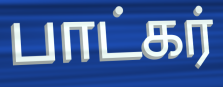
பாட்கர்